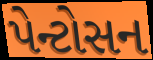
પેન્ટોસન